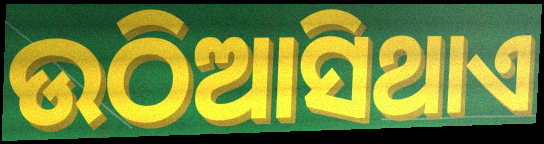
ଉଠିଆସିଥାଏ